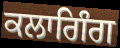
ਕਲਾਗਿੰਗ